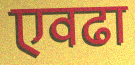
एवढा